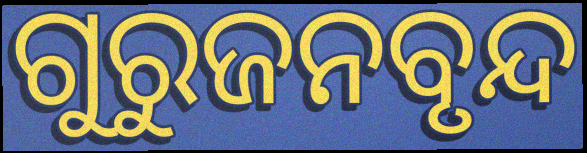
ଗୁରୁଜନବୃନ୍ଦ